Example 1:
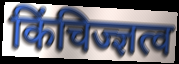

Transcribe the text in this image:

किंचिज्ज्ञत्व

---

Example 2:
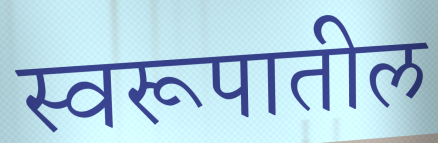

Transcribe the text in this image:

स्वरूपातील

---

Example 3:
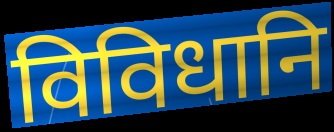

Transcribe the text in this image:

विविधानि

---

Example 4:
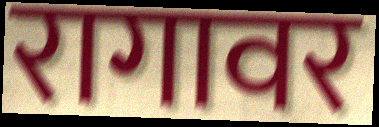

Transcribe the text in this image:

रागावर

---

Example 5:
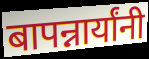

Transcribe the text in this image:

बापन्नार्यांनी